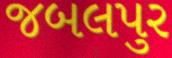
જબલપુર